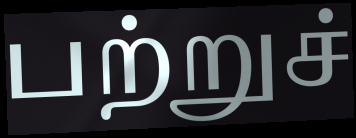
பற்றுச்